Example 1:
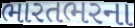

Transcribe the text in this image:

ભારતભરના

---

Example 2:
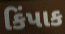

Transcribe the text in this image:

કિંપાક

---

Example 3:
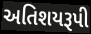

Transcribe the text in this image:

અતિશયરૂપી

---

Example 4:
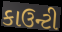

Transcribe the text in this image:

કાઉન્ટી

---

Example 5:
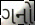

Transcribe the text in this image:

ગનો